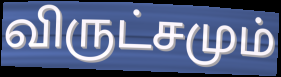
விருட்சமும்